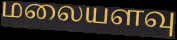
மலையளவு